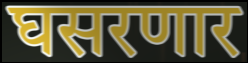
घसरणार